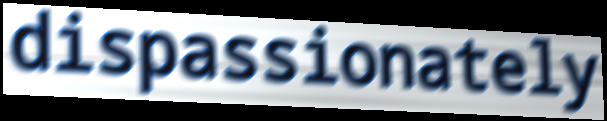
dispassionately